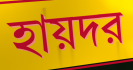
হায়দর